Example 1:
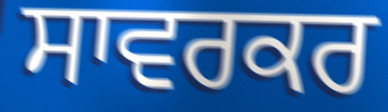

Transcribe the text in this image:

ਸਾਵਰਕਰ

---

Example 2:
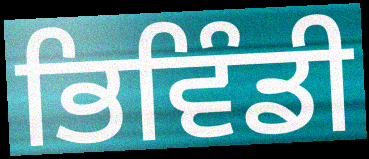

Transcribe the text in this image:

ਭਿਵਿੰਡੀ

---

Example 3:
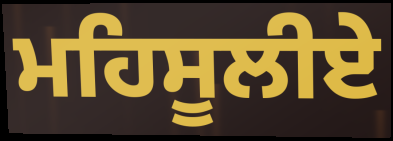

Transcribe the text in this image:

ਮਹਿਸੂਲੀਏ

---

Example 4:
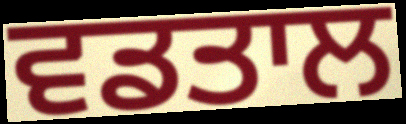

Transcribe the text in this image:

ਵਡਤਾਲ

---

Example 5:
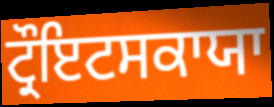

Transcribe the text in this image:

ਟ੍ਰੌਇਟਸਕਾਯਾ